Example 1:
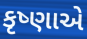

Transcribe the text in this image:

કૃષ્ણાએ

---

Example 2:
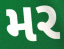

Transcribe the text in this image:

મર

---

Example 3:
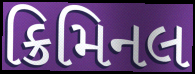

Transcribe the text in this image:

ક્રિમિનલ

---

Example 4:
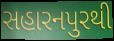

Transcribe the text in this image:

સહારનપુરથી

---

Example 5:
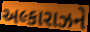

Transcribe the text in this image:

અલ્કારાઝને